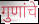
गुणांचे